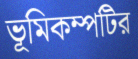
ভূমিকম্পটির